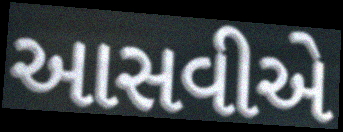
આસવીએ